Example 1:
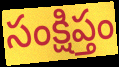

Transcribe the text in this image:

సంక్షిప్తం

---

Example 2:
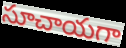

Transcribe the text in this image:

సూచాయగా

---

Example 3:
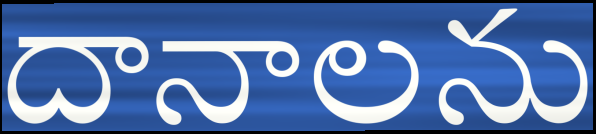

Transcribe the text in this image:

దానాలను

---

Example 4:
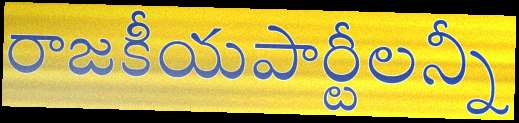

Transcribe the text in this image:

రాజకీయపార్టీలన్నీ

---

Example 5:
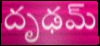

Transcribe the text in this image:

దృఢమ్